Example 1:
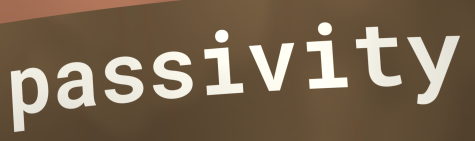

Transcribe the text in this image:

passivity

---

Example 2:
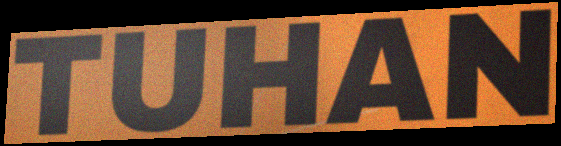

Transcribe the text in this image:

TUHAN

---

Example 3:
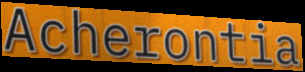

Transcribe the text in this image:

Acherontia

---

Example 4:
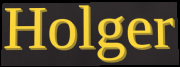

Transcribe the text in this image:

Holger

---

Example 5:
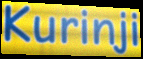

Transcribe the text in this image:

Kurinji